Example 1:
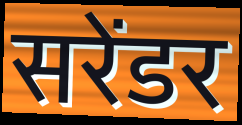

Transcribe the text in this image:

सरेंडर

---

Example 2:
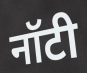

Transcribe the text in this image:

नॉटी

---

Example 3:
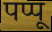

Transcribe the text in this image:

पप्पू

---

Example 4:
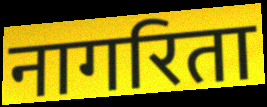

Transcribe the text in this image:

नागरिता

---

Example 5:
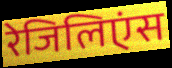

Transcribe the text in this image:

रेजिलिएंस